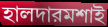
হালদারমশাই